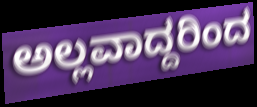
ಅಲ್ಲವಾದ್ದರಿಂದ